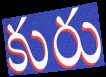
కురు